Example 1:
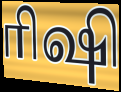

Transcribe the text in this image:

ரிஷி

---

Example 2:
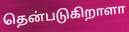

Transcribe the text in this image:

தென்படுகிறாளா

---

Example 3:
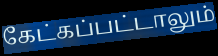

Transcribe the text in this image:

கேட்கப்பட்டாலும்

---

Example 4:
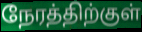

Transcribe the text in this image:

நேரத்திற்குள்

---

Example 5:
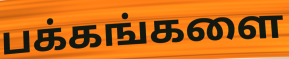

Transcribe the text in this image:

பக்கங்களை